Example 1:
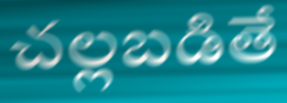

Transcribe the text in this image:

చల్లబడితే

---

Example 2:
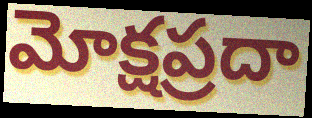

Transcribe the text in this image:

మోక్షప్రదా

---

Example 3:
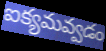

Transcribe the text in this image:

ఐక్యమవ్వడం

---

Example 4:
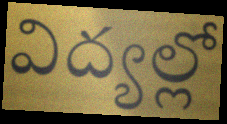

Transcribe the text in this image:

విద్యల్లో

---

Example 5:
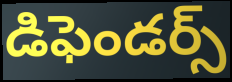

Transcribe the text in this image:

డిఫెండర్స్